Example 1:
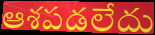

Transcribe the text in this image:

ఆశపడలేదు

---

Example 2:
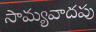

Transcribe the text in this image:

సామ్యవాదపు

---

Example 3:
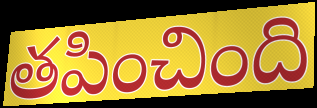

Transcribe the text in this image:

తపించింది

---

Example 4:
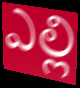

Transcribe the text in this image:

ఎల్లి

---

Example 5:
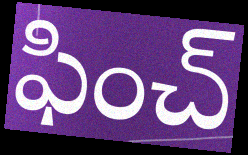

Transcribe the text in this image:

ఫించ్